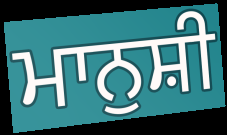
ਮਾਨੁਸ਼ੀ